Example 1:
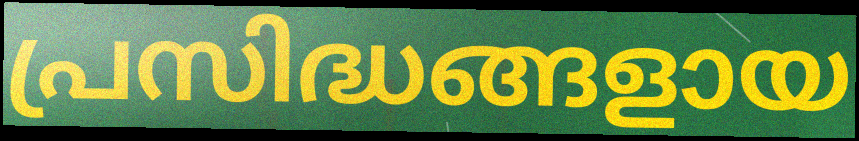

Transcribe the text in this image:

പ്രസിദ്ധങ്ങളായ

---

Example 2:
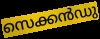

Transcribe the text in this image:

സെക്കൻഡു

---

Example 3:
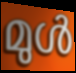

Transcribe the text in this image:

മുൾ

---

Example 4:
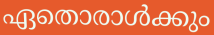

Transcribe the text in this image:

ഏതൊരാൾക്കും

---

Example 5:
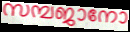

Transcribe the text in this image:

സമ്പജാനോ